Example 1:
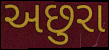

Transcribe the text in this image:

અછુરા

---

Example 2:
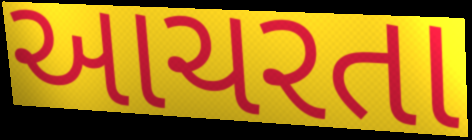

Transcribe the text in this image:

આચરતા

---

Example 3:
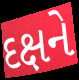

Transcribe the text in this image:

દક્ષને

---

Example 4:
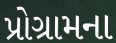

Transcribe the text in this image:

પ્રોગ્રામના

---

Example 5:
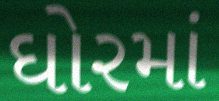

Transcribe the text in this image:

ઘોરમાં